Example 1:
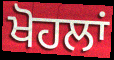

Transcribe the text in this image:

ਖੋਹਲਾਂ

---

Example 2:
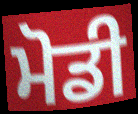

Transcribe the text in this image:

ਮੋਡੀ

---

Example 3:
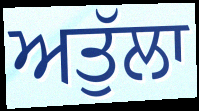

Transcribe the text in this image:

ਅਤੁੱਲਾ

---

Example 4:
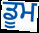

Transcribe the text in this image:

ਡੂਮ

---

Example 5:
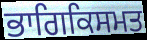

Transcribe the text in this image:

ਭਾਗਿਕਿਸਮਤ